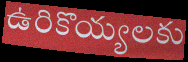
ఉరికొయ్యలకు